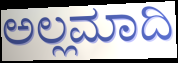
ಅಲ್ಲಮಾದಿ